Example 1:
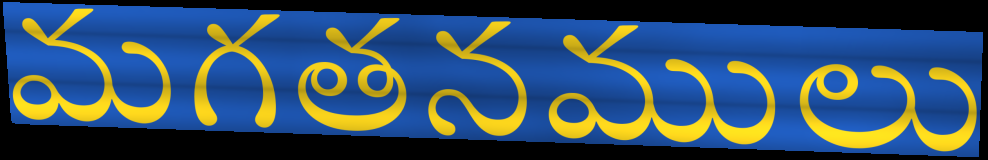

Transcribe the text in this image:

మగతనములు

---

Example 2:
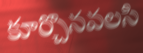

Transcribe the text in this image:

కూర్చొనవలసి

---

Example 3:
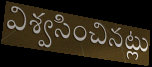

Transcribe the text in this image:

విశ్వసించినట్లు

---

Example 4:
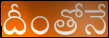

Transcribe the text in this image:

దీంతోనే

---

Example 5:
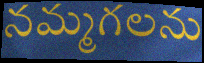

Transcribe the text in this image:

నమ్మగలను